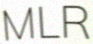
MLR